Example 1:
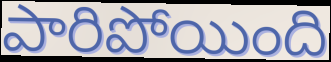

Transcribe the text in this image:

పారిపోయింది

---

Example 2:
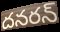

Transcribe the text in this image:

దనరన్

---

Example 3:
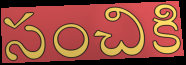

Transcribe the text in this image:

సంచికి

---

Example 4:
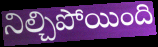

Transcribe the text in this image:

నిల్చిపోయింది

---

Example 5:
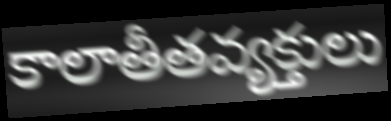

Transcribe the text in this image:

కాలాతీతవ్యక్తులు